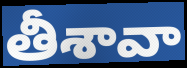
తీశావా